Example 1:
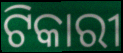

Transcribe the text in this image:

ଟିକାରୀ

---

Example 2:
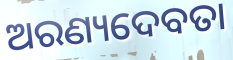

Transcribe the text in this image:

ଅରଣ୍ୟଦେବତା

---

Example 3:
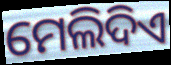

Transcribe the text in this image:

ମେଲିଦିଏ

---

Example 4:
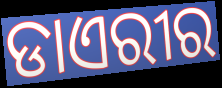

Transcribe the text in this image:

ଡାଏରୀର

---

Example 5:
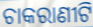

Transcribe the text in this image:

ଚାକରାଣୀଟି